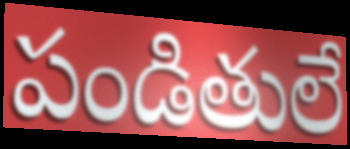
పండితులే